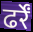
ढर्रें